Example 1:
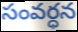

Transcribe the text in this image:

సంవర్ధన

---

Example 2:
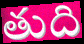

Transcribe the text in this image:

తుది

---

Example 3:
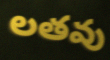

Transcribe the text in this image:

లతవు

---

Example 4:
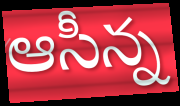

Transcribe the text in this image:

ఆసీన్న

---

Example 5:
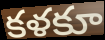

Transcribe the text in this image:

కళకూ